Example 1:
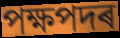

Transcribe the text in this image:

পক্ষপদৰ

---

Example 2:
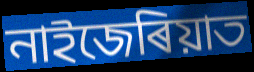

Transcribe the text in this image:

নাইজেৰিয়াত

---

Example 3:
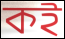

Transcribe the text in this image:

কই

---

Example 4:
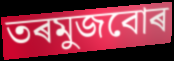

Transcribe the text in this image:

তৰমুজবোৰ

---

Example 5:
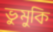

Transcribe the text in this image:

ভুমুকি